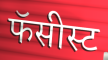
फॅसीस्ट